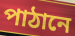
পাঠানে